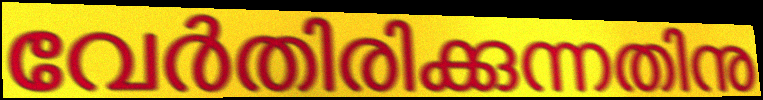
വേർതിരിക്കുന്നതിനു